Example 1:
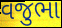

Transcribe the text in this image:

વજુભા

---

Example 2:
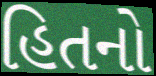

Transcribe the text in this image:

હિતનો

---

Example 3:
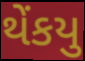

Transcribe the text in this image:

થેંકયુ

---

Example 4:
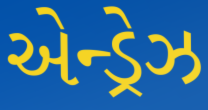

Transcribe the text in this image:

એન્ડ્રેઝ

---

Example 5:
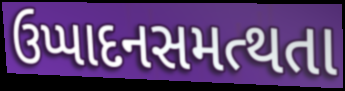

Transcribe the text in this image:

ઉપ્પાદનસમત્થતા